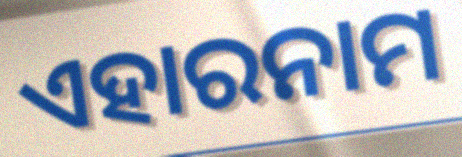
ଏହାରନାମ